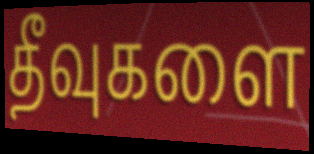
தீவுகளை